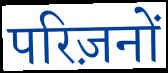
परिज़नों